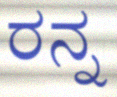
ರನ್ನ